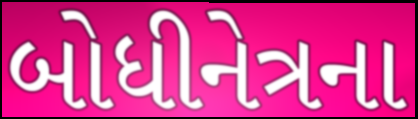
બોધીનેત્રના